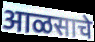
आळसाचे